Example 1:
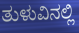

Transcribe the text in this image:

ತುಳುವಿನಲ್ಲಿ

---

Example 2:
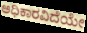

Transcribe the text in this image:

ಅಧಿಕಾರವಿದೆಯೇ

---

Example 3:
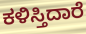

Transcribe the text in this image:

ಕಳಿಸ್ತಿದಾರೆ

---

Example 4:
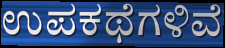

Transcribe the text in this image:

ಉಪಕಥೆಗಳಿವೆ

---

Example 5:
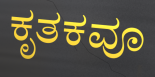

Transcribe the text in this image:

ಕೃತಕವೂ